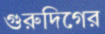
গুরুদিগের